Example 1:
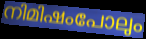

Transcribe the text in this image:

നിമിഷംപോലും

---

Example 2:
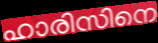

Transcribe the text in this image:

ഹാരിസിനെ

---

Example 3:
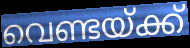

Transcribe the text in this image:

വെണ്ടയ്ക്ക്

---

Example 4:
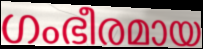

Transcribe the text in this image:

ഗംഭീരമായ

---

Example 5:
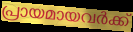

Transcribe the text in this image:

പ്രായമായവർക്ക്